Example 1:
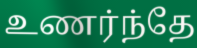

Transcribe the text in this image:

உணர்ந்தே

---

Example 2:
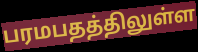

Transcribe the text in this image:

பரமபதத்திலுள்ள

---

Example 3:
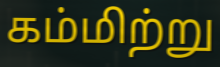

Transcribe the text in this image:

கம்மிற்று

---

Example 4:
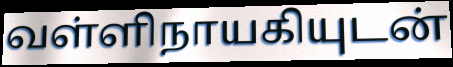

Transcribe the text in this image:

வள்ளிநாயகியுடன்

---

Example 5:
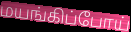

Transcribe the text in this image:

மயங்கிப்போய்